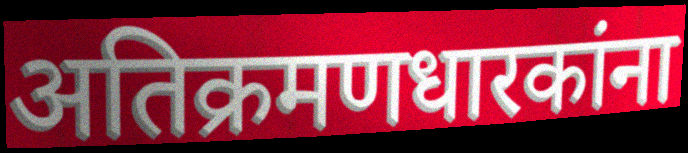
अतिक्रमणधारकांना